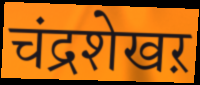
चंद्रशेखऱ